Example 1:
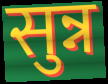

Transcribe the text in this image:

सुन्न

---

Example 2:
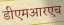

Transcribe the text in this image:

डीएमआरएच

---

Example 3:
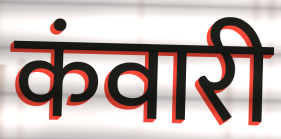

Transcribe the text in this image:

कंवारी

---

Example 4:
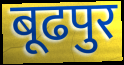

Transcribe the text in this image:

बूढपुर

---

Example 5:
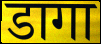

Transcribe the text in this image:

डागा